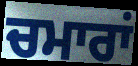
ਚਮਾਰਾਂ